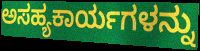
ಅಸಹ್ಯಕಾರ್ಯಗಳನ್ನು